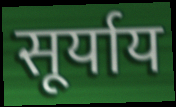
सूर्याय